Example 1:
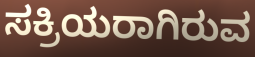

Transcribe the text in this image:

ಸಕ್ರಿಯರಾಗಿರುವ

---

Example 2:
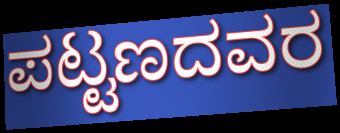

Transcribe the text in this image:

ಪಟ್ಟಣದವರ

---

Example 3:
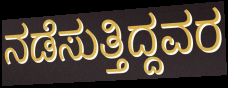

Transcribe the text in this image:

ನಡೆಸುತ್ತಿದ್ದವರ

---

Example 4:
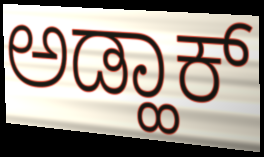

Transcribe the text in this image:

ಅಡ್ಹಾಕ್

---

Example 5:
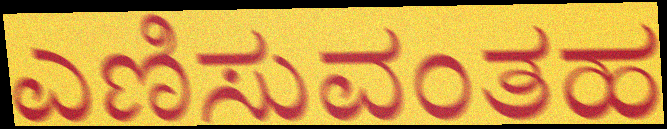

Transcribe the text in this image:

ಎಣಿಸುವಂತಹ